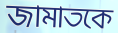
জামাতকে